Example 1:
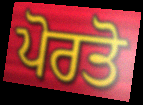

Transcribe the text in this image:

ਪੋਰਤੋ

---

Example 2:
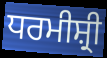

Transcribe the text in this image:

ਧਰਮੀਸ਼੍ਰੀ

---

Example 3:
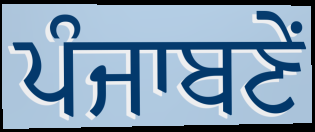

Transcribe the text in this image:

ਪੰਜਾਬਣੇਂ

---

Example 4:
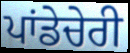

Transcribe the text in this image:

ਪਾਂਡੇਚੇਰੀ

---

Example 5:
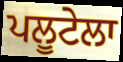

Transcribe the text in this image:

ਪਲੂਟੇਲਾ